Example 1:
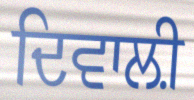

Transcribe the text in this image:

ਦਿਵਾਲ਼ੀ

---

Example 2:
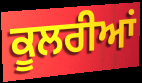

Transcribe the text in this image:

ਕੂਲਰੀਆਂ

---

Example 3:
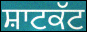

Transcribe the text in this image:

ਸ਼ਾਟਕੱਟ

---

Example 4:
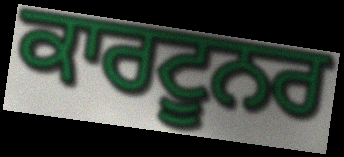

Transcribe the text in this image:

ਕਾਰਟੂਨਰ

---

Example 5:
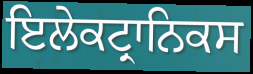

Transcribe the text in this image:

ਇਲੇਕਟ੍ਰਾਨਿਕਸ